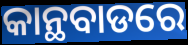
କାନ୍ଥବାଡରେ